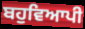
ਬਹੁਵਿਆਪੀ